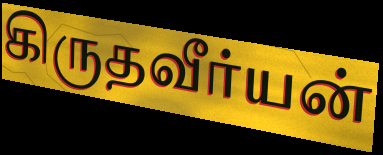
கிருதவீர்யன்